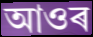
আওৰ